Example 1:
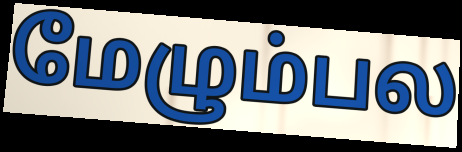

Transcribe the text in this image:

மேழும்பல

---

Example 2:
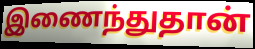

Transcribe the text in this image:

இணைந்துதான்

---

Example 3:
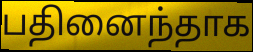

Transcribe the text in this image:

பதினைந்தாக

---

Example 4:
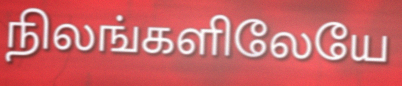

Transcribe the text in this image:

நிலங்களிலேயே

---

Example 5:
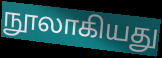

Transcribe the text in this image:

நூலாகியது